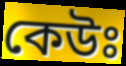
কেউঃ